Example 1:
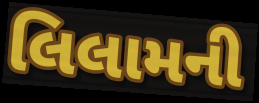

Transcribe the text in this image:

લિલામની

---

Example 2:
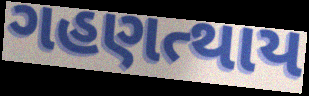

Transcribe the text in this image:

ગહણત્થાય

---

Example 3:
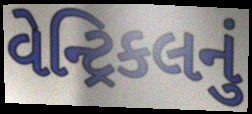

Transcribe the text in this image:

વેન્ટ્રિકલનું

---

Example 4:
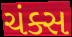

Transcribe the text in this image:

ચંક્સ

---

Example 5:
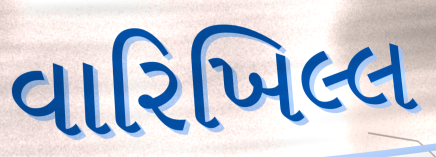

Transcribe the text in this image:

વારિખિલ્લ